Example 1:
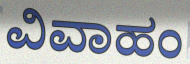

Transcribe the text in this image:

ವಿವಾಹಂ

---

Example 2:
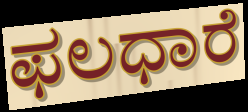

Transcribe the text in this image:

ಫಲಧಾರೆ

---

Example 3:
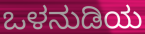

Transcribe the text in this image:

ಒಳನುಡಿಯ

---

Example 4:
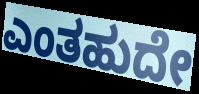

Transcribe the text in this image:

ಎಂತಹುದೇ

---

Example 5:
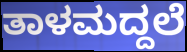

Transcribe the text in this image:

ತಾಳಮದ್ದಲೆ